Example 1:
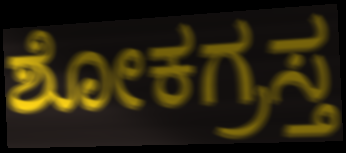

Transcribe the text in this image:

ಶೋಕಗ್ರಸ್ತ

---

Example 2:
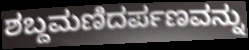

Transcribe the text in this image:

ಶಬ್ದಮಣಿದರ್ಪಣವನ್ನು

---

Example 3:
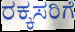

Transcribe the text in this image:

ರಕ್ಕಸರಿಗೆ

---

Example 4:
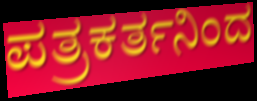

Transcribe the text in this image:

ಪತ್ರಕರ್ತನಿಂದ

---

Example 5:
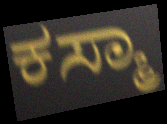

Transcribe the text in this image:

ಕಸ್ಮಾ